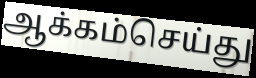
ஆக்கம்செய்து